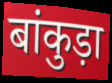
बांकुड़ा